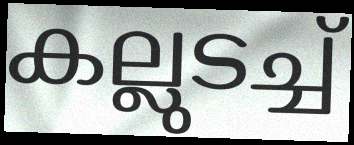
കല്ലുടച്ച്